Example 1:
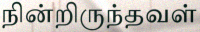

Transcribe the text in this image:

நின்றிருந்தவள்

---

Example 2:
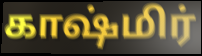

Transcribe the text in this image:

காஷ்மிர்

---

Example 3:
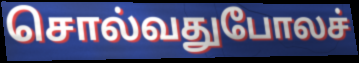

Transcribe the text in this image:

சொல்வதுபோலச்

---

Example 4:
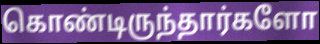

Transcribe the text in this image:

கொண்டிருந்தார்களோ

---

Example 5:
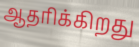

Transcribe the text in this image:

ஆதரிக்கிறது